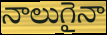
నాలుగైనా